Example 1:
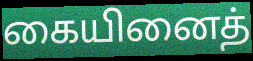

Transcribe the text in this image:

கையினைத்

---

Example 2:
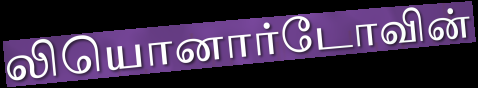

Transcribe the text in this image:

லியொனார்டோவின்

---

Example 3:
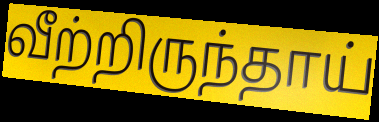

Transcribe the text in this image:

வீற்றிருந்தாய்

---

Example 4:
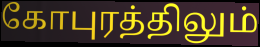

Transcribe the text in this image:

கோபுரத்திலும்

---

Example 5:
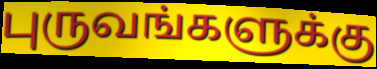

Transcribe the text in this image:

புருவங்களுக்கு